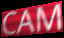
CAM